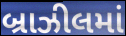
બ્રાઝીલમાં